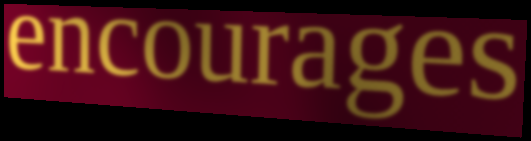
encourages